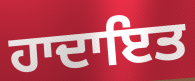
ਹਾਦਾਇਤ